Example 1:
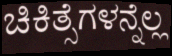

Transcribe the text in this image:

ಚಿಕಿತ್ಸೆಗಳನ್ನೆಲ್ಲ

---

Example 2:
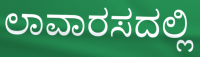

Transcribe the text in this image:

ಲಾವಾರಸದಲ್ಲಿ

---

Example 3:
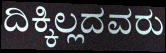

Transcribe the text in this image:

ದಿಕ್ಕಿಲ್ಲದವರು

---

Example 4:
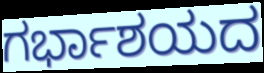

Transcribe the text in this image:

ಗರ್ಭಾಶಯದ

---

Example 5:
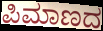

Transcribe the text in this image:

ಪಿಮಾಣದ